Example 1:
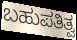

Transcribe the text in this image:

ಬಹುಪತಿತ್ವ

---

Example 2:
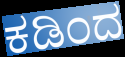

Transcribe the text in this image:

ಕಡಿಂದ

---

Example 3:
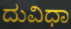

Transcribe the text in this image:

ದುವಿಧಾ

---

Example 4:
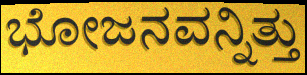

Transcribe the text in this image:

ಭೋಜನವನ್ನಿತ್ತು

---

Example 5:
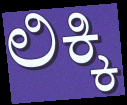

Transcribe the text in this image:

ಲಿಕ್ಕಿ